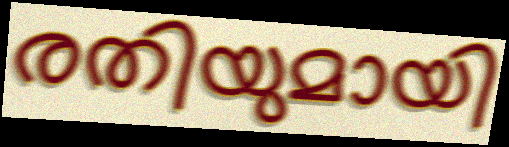
രതിയുമായി